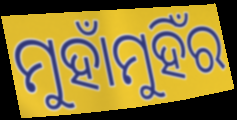
ମୁହାଁମୁହିଁର